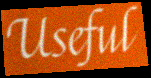
Useful